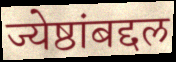
ज्येष्ठांबद्दल